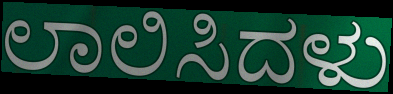
ಲಾಲಿಸಿದಳು